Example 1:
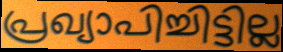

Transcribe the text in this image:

പ്രഖ്യാപിച്ചിട്ടില്ല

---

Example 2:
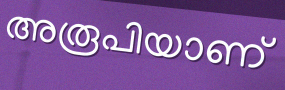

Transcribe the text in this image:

അരൂപിയാണ്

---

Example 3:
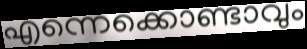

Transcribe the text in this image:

എന്നെക്കൊണ്ടാവും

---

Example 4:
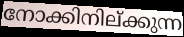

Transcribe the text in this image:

നോക്കിനില്ക്കുന്ന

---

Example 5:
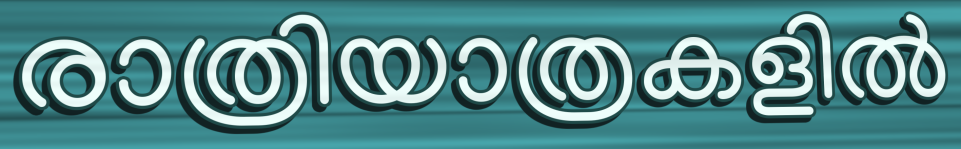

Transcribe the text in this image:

രാത്രിയാത്രകളിൽ